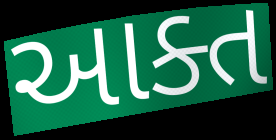
આક્ત